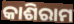
କାଶିରାମ